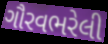
ગૌરવભરેલી